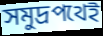
সমুদ্রপথেই